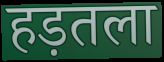
हड़तला